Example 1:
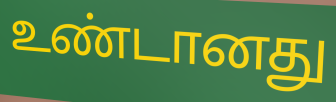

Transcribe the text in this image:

உண்டானது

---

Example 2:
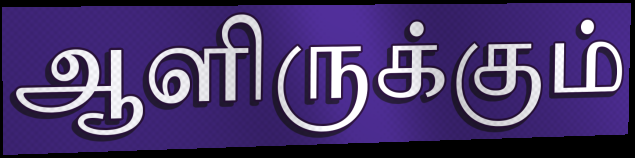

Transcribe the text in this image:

ஆளிருக்கும்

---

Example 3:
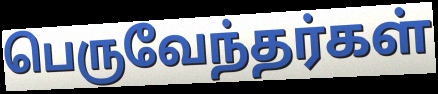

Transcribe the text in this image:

பெருவேந்தர்கள்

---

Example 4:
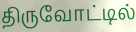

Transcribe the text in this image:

திருவோட்டில்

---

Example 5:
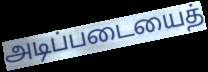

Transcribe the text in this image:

அடிப்படையைத்